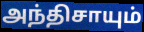
அந்திசாயும்